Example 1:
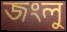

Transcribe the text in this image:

জংলু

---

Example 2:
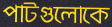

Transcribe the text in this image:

পাটগুলোকে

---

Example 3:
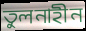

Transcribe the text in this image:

তুলনাহীন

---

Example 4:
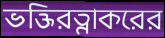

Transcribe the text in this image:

ভক্তিরত্নাকরের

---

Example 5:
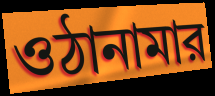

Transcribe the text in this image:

ওঠানামার